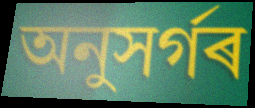
অনুসৰ্গৰ